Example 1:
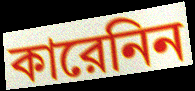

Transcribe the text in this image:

কারেনিন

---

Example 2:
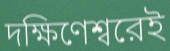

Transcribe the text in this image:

দক্ষিণেশ্বরেই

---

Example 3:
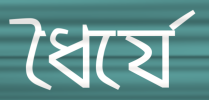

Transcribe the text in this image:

ধৈর্যে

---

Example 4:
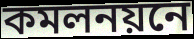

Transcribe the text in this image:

কমলনয়নে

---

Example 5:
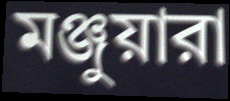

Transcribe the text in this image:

মঞ্জুয়ারা